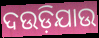
ଦଉଡ଼ିଯାଉ